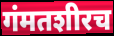
गंमतशीरच